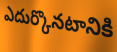
ఎదుర్కొనటానికి